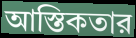
আস্তিকতার